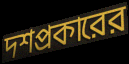
দশপ্রকারের